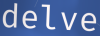
delve